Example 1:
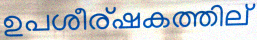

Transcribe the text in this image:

ഉപശീര്ഷകത്തില്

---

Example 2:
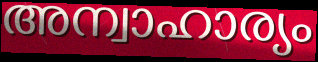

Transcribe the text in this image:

അന്വാഹാര്യം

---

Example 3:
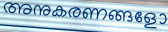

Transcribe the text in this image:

അനുകരണങ്ങളോ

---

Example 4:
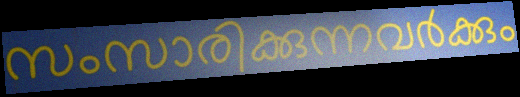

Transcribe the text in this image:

സംസാരിക്കുന്നവർക്കും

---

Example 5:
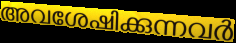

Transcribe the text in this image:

അവശേഷിക്കുന്നവർ